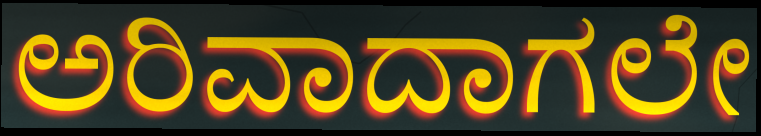
ಅರಿವಾದಾಗಲೇ